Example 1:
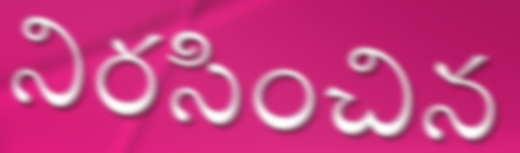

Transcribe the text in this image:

నిరసించిన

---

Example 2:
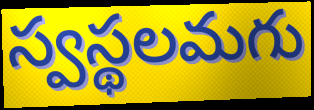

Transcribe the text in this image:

స్వస్థలమగు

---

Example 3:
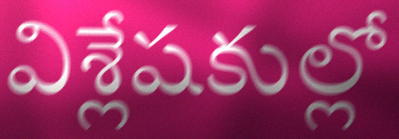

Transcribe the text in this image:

విశ్లేషకుల్లో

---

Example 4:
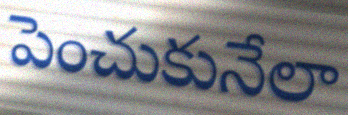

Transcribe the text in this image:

పెంచుకునేలా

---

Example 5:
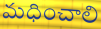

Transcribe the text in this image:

మధించాలి